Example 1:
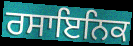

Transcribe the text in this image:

ਰਸਾਇਨਿਕ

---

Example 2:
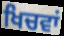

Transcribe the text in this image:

ਖਿਚਵਾਂ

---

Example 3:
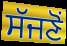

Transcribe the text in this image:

ਸੱਜਣੋਂ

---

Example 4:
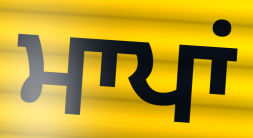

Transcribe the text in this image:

ਮਾਪਾਂ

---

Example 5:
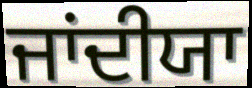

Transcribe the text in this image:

ਜਾਂਦੀਯਾ